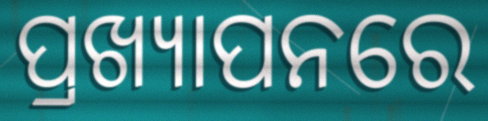
ପ୍ରଖ୍ୟାପନରେ